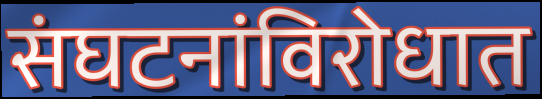
संघटनांविरोधात